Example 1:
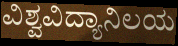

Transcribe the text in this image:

ವಿಶ್ವವಿದ್ಯಾನಿಲಯ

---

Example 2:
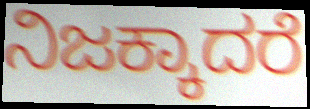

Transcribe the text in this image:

ನಿಜಕ್ಕಾದರೆ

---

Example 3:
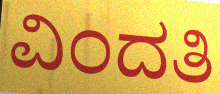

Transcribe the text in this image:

ವಿಂದತಿ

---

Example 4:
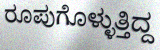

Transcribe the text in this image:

ರೂಪುಗೊಳ್ಳುತ್ತಿದ್ದ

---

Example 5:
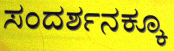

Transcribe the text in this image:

ಸಂದರ್ಶನಕ್ಕೂ